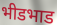
भीडभाड